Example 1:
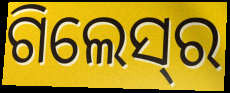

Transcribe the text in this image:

ଗିଲେସ୍‍ର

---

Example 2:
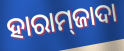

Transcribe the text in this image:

ହାରାମ୍‌ଜାଦା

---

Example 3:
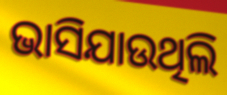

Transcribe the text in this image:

ଭାସିଯାଉଥିଲି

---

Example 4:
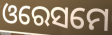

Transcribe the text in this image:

ଓରେସମେ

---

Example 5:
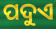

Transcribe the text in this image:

ପଦୁଏ